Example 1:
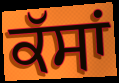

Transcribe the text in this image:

ਕੱਸਾਂ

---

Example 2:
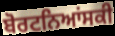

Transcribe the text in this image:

ਬੋਰਟਨਿਆਂਸਕੀ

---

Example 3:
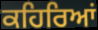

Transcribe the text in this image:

ਕਹਿਰਿਆਂ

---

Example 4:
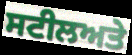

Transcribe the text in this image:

ਸਟੀਲਅਤੇ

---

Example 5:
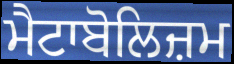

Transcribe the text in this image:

ਮੈਟਾਬੋਲਿਜ਼ਮ